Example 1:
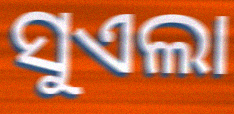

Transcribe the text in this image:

ସୁଏଲା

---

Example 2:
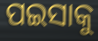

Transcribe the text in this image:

ପଇସାକୁ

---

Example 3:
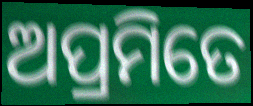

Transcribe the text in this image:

ଅପ୍ରମିତେ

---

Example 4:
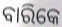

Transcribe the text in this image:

ବାରିକେ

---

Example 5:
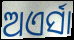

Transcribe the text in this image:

ଅଏର୍ସା